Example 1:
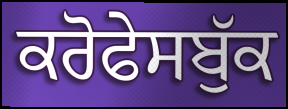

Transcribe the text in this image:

ਕਰੋਫੇਸਬੁੱਕ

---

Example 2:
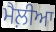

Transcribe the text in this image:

ਮੈਲ਼ੀਆ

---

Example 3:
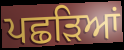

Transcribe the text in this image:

ਪਛੜਿਆਂ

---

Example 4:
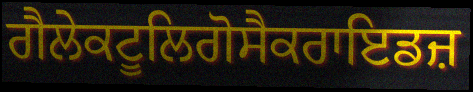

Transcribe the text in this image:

ਗੈਲੇਕਟੂਲਿਗੋਸੈਕਰਾਇਡਜ਼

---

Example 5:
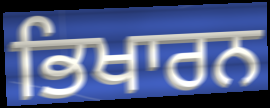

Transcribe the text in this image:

ਭਿਖਾਰਨ